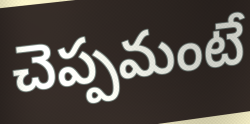
చెప్పమంటే